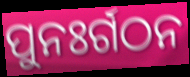
ପୁନଃର୍ଗଠନ